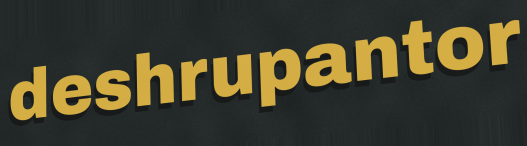
deshrupantor